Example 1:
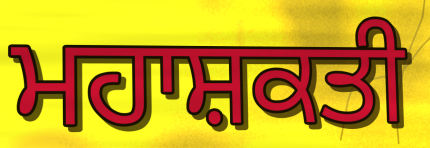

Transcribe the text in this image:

ਮਹਾਸ਼ਕਤੀ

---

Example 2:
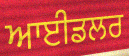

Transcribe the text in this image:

ਆਈਡਲਰ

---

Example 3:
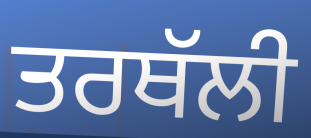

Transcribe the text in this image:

ਤਰਥੱਲੀ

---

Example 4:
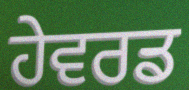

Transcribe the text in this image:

ਹੇਵਰਡ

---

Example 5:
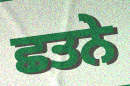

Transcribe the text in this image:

ਛਤਨੇ